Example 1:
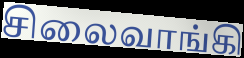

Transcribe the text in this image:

சிலைவாங்கி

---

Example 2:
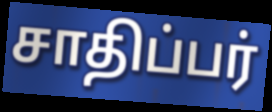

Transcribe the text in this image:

சாதிப்பர்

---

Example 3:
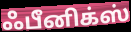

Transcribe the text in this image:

ஃபீனிக்ஸ்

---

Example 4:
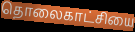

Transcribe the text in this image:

தொலைகாட்சியை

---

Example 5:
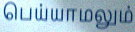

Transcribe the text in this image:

பெய்யாமலும்